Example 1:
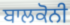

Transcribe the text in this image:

ਬਾਲਕੋਨੀ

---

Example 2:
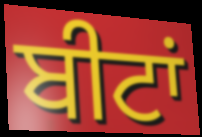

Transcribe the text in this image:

ਬੀਟਾਂ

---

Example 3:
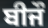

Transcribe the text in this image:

ਬੀਜੌ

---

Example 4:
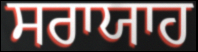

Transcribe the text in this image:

ਸਰਾਯਾਹ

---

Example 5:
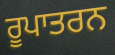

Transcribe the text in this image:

ਰੂਪਾਤਰਨ